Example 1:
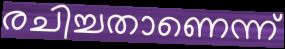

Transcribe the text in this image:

രചിച്ചതാണെന്ന്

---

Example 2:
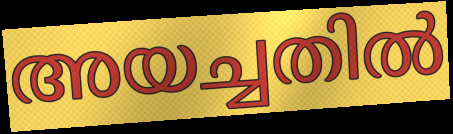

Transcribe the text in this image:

അയച്ചതിൽ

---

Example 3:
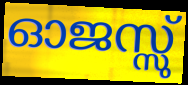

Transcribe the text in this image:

ഓജസ്സു്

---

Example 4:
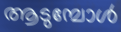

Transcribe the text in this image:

ആടുമ്പോൾ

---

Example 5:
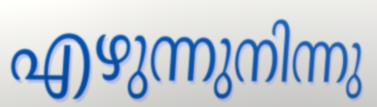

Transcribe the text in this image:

എഴുന്നുനിന്നു